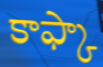
కాఫ్కా